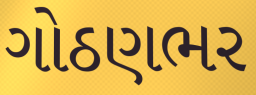
ગોઠણભર